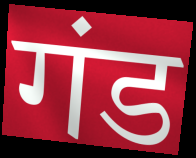
गंड